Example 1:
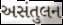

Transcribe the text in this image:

અસંતુલન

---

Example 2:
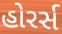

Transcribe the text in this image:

હોરર્સ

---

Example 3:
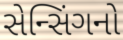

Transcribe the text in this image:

સેન્સિંગનો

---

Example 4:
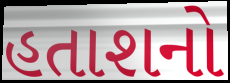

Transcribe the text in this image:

હતાશનો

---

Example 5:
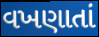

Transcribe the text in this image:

વખણાતાં